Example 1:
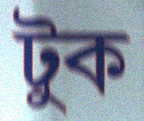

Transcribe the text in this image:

টুক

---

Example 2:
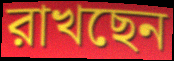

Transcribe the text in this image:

রাখছেন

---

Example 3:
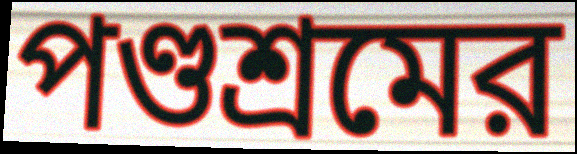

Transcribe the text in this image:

পণ্ডশ্রমের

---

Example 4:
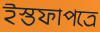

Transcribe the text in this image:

ইস্তফাপত্রে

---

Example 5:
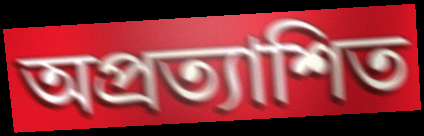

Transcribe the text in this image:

অপ্রত্যাশিত